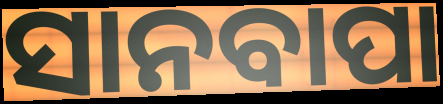
ସାନବାପା